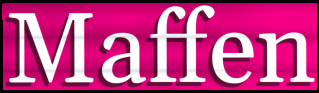
Maffen